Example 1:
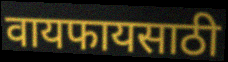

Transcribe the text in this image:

वायफायसाठी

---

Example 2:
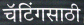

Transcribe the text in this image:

चॅटिंगसाठी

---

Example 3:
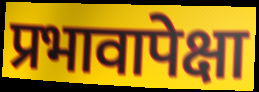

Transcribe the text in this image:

प्रभावापेक्षा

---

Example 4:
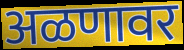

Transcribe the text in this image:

अळणावर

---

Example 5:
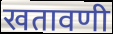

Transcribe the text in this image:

खतावणी